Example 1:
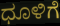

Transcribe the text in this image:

ಧೂಳಿಗೆ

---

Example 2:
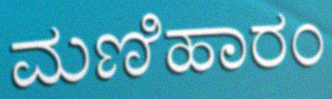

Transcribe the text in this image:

ಮಣಿಹಾರಂ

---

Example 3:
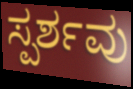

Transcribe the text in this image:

ಸ್ಪರ್ಶವು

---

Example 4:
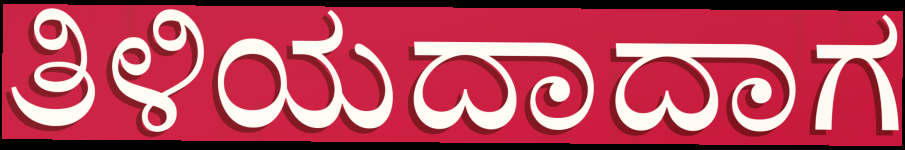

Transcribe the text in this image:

ತಿಳಿಯದಾದಾಗ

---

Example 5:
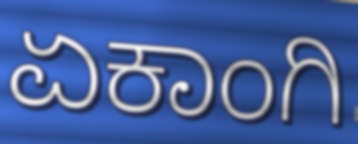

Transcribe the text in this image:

ಏಕಾಂಗಿ